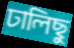
ঢালিছু